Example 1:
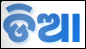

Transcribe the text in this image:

ଡିଆ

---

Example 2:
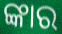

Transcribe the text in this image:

ଙ୍କାର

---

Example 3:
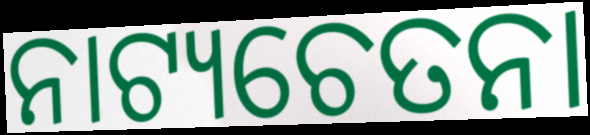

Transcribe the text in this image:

ନାଟ୍ୟଚେତନା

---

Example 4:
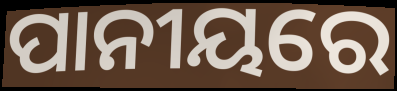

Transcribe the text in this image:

ପାନୀୟରେ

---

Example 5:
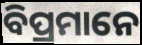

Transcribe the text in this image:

ବିପ୍ରମାନେ